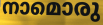
നാമൊരു